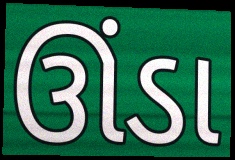
ઊંડા